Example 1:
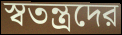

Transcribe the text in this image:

স্বতন্ত্রদের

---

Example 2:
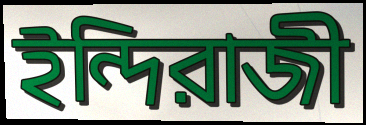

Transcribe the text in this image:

ইন্দিরাজী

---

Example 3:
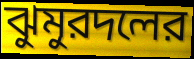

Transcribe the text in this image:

ঝুমুরদলের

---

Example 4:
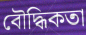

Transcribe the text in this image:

বৌদ্ধিকতা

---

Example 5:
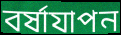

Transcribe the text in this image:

বর্ষাযাপন